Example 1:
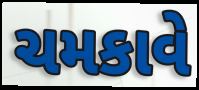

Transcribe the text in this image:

ચમકાવે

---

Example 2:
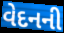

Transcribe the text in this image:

વેદનની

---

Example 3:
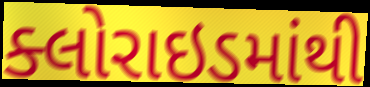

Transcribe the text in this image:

ક્લોરાઇડમાંથી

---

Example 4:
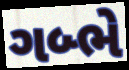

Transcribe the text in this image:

ગબ્ભે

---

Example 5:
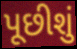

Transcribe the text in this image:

પૂછીશું